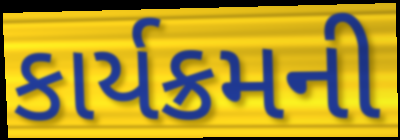
કાર્યક્રમની